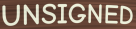
UNSIGNED